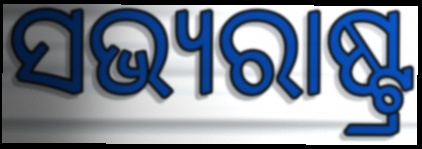
ସଭ୍ୟରାଷ୍ଟ୍ର